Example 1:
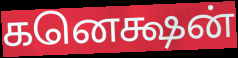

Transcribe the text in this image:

கனெக்ஷன்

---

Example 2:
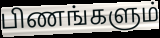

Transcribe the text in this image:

பிணங்களும்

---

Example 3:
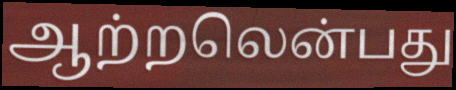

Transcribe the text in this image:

ஆற்றலென்பது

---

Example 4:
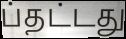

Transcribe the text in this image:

ப்தட்டது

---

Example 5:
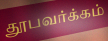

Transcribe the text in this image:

தூபவர்க்கம்